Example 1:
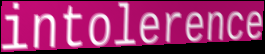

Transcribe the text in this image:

intolerence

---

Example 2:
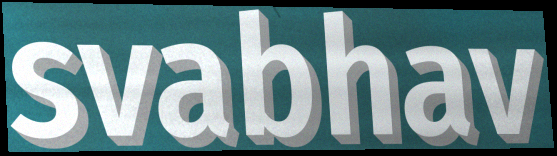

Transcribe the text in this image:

svabhav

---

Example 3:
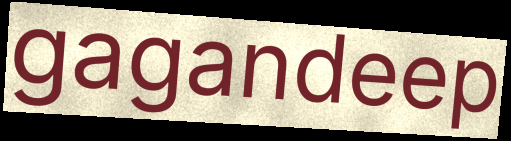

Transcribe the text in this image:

gagandeep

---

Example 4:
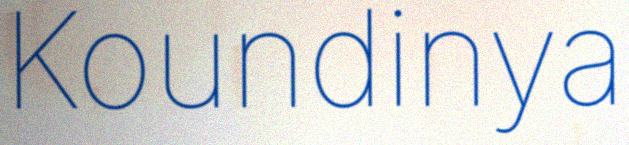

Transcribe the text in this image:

Koundinya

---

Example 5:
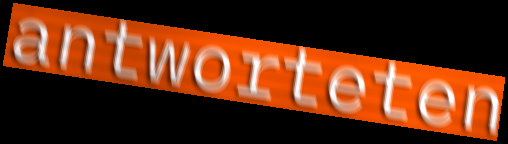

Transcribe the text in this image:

antworteten